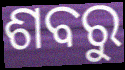
ଶବରୁ